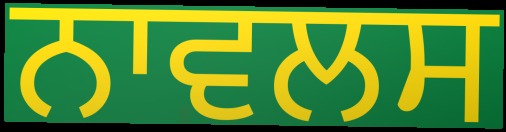
ਨਾਵਲਸ